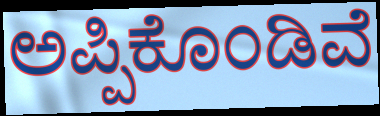
ಅಪ್ಪಿಕೊಂಡಿವೆ